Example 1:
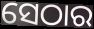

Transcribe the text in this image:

ସେଠାର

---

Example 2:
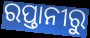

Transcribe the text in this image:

ରପ୍ତାନୀରୁ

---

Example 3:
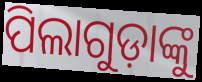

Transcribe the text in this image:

ପିଲାଗୁଡ଼ାଙ୍କୁ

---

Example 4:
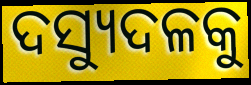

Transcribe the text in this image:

ଦସ୍ୟୁଦଳକୁ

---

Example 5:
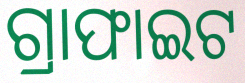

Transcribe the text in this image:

ଗ୍ରାଫାଇଟ